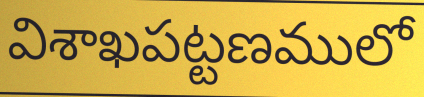
విశాఖపట్టణములో